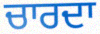
ਚਾਰਦਾ